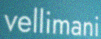
vellimani